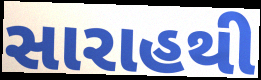
સારાહથી